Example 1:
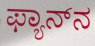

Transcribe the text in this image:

ಫ್ಯಾನ್‌ನ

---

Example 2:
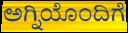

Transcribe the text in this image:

ಅಗ್ನಿಯೊಂದಿಗೆ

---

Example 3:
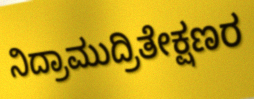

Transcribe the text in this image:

ನಿದ್ರಾಮುದ್ರಿತೇಕ್ಷಣರ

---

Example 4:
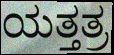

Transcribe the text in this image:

ಯತ್ತತ್ರ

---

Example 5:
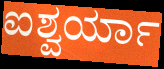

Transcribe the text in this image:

ಐಶ್ವರ್ಯಾ